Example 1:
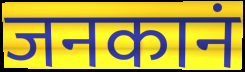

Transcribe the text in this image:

जनकानं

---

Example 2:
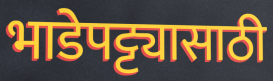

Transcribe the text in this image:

भाडेपट्ट्यासाठी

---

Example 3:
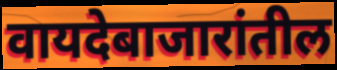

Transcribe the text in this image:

वायदेबाजारांतील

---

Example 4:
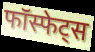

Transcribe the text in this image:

फॉस्फेट्स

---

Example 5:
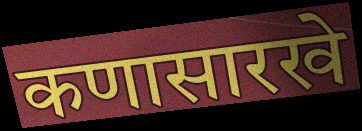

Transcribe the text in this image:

कणासारखे